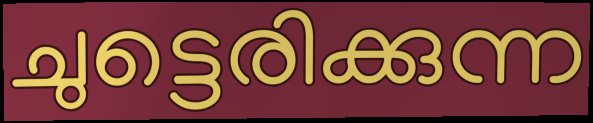
ചുട്ടെരിക്കുന്ന